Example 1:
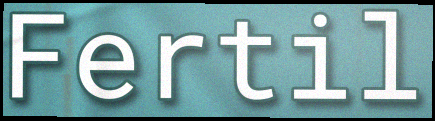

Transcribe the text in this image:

Fertil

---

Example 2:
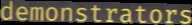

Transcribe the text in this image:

demonstrators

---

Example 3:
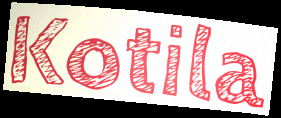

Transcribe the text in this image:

Kotila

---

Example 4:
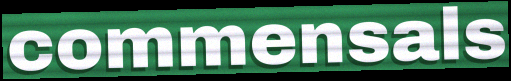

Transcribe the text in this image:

commensals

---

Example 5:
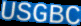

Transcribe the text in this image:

USGBC